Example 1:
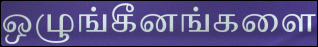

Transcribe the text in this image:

ஒழுங்கீனங்களை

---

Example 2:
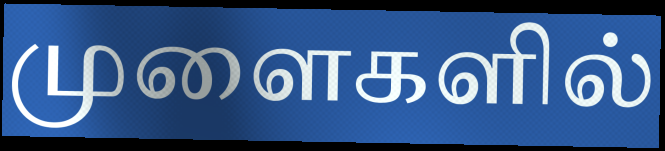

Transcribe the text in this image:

முளைகளில்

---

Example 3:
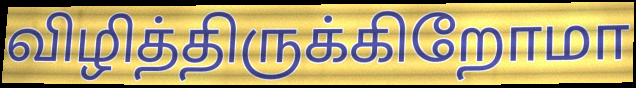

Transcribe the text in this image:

விழித்திருக்கிறோமா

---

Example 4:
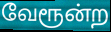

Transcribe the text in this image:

வேரூன்ற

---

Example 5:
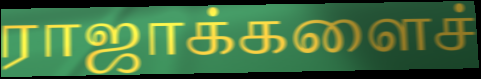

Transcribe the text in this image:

ராஜாக்களைச்